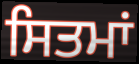
ਸਿਤਮਾਂ